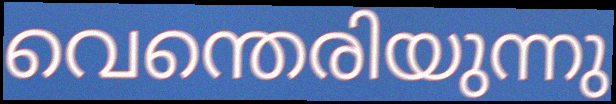
വെന്തെരിയുന്നു